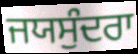
ਜਯਸੁੰਦਰਾ